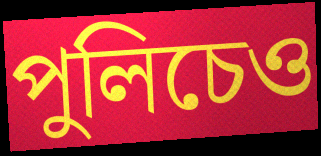
পুলিচেও